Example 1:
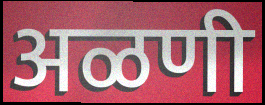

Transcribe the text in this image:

अळणी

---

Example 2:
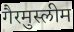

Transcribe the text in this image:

गैरमुस्लीम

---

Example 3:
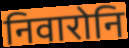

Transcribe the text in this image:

निवारोनि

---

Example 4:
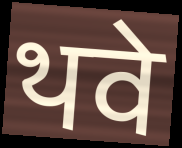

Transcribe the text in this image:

थवे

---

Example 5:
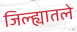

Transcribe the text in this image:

जिल्ह्यातले